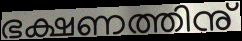
ഭക്ഷണത്തിനു്